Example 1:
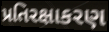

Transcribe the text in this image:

પ્રતિરક્ષાકરણ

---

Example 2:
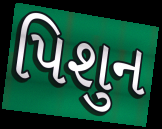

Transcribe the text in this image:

પિશુન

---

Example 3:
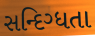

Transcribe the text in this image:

સન્દિગ્ધતા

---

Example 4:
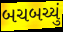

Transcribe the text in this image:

બચબચ્યું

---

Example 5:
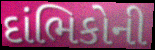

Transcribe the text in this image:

દાંભિકોની